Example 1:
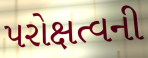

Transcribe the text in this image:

પરોક્ષત્વની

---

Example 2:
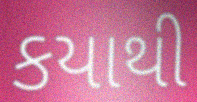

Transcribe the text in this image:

કયાથી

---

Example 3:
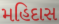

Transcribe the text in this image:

મહિદાસ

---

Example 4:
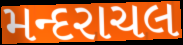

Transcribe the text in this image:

મન્દરાચલ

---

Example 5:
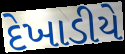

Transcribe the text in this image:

દેખાડીયે